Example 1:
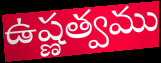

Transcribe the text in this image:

ఉష్ణత్వము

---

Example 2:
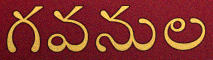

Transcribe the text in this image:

గవనుల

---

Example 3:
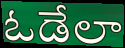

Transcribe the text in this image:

ఓడేలా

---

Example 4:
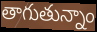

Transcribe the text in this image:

తాగుతున్నాం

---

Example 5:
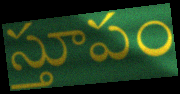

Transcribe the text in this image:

స్తూపం